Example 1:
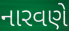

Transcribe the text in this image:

નારવણે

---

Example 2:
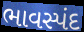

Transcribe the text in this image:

ભાવસ્પંદ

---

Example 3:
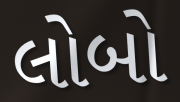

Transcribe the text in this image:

લોબો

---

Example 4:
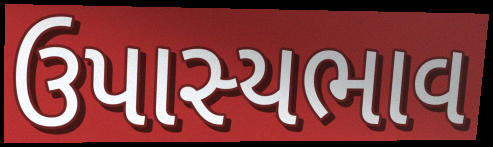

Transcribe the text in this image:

ઉપાસ્યભાવ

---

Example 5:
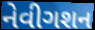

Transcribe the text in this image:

નેવીગશન